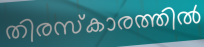
തിരസ്കാരത്തിൽ